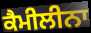
ਕੈਮੀਲੀਨਾ